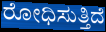
ರೋಧಿಸುತ್ತಿದೆ